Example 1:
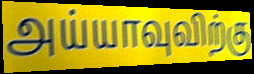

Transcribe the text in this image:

அய்யாவுவிற்கு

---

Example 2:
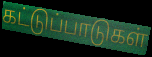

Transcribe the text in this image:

கட்டுப்பாடுகள்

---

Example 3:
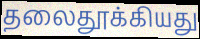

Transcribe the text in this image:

தலைதூக்கியது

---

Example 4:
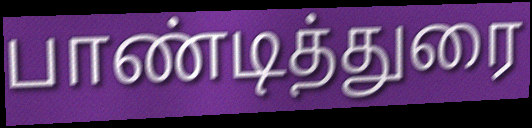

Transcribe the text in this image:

பாண்டித்துரை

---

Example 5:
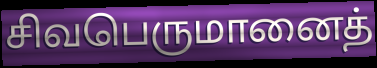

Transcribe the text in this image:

சிவபெருமானைத்